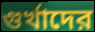
গুর্খাদের